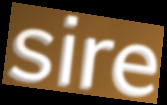
sire